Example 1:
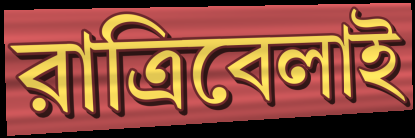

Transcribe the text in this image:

রাত্রিবেলাই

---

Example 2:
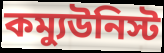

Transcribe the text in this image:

কম্যুউনিস্ট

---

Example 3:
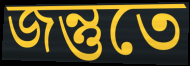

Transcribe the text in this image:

জন্তুতে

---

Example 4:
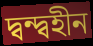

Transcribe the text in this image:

দ্বন্দ্বহীন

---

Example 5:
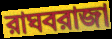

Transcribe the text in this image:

রাঘবরাজা